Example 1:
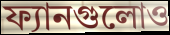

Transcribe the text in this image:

ফ্যানগুলোও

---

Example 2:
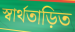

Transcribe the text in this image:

স্বার্থতাড়িত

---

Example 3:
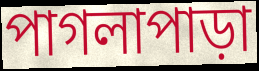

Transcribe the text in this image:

পাগলাপাড়া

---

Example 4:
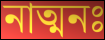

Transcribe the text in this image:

নাত্মনঃ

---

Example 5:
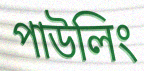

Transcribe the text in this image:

পাউলিং